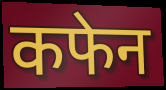
कफेन